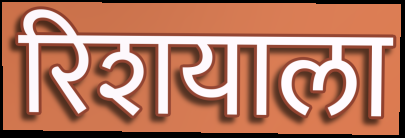
रिशयाला